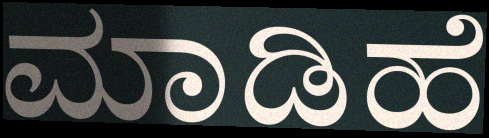
ಮಾಡಿಹೆ